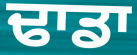
ਢਾਡਾ